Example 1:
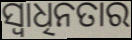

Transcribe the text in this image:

ସ୍ୱାଧିନତାର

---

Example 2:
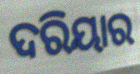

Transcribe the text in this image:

ଦରିୟାର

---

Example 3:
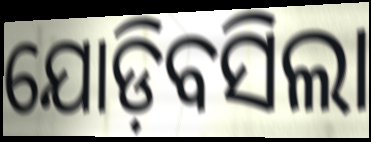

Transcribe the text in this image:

ଯୋଡ଼ିବସିଲା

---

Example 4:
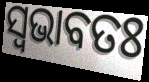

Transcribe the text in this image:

ସ୍ଵଭାବତଃ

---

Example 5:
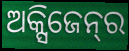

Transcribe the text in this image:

ଅକ୍ସିଜେନ୍‌ର